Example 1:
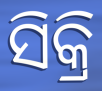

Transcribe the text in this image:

ସିକ୍ରି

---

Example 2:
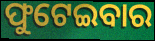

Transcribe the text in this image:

ଫୁଟେଇବାର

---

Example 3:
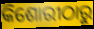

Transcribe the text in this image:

କିଶୋରୀଠାରୁ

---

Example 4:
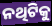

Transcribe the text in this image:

ନଥିଟିକୁ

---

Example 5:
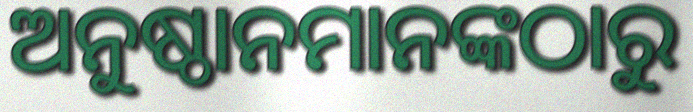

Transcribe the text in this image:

ଅନୁଷ୍ଠାନମାନଙ୍କଠାରୁ